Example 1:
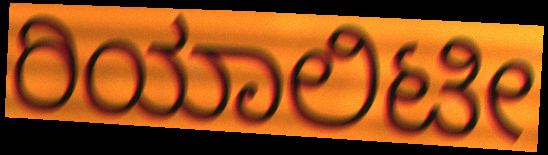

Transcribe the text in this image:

ರಿಯಾಲಿಟೀ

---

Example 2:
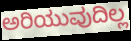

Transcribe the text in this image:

ಅರಿಯುವುದಿಲ್ಲ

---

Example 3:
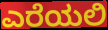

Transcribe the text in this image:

ಎರೆಯಲಿ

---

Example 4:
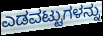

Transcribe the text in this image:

ಎಡವಟ್ಟುಗಳನ್ನು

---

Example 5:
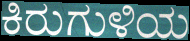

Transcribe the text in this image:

ಕಿರುಗುಳಿಯ